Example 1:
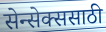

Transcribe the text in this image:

सेन्सेक्ससाठी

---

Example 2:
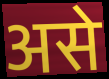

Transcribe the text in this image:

असे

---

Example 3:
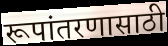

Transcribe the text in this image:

रूपांतरणासाठी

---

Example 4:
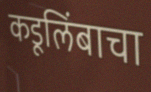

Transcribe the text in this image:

कडूलिंबाचा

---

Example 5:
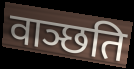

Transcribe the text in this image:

वाञ्छति